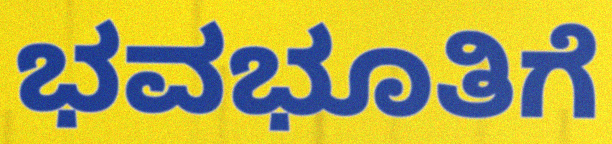
ಭವಭೂತಿಗೆ